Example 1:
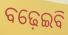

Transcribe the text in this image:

ବଢ଼େଇବି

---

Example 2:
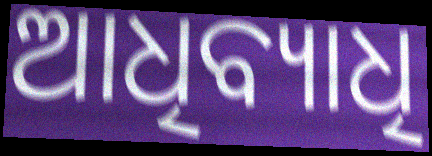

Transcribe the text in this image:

ଆଧିବ୍ୟାଧି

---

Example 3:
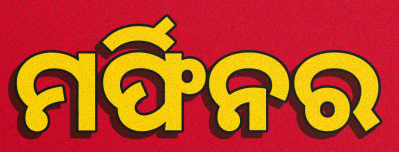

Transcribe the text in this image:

ମର୍ଫିନର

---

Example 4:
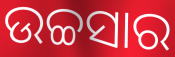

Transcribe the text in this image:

ଉଚ୍ଚସାର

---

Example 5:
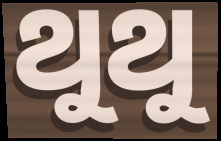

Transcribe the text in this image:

ଥୁଥୁ